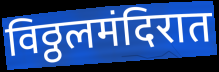
विठ्ठलमंदिरात